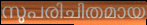
സുപരിചിതമായ